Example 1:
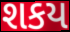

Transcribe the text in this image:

શકય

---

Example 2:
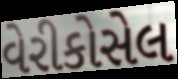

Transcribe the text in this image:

વેરીકોસેલ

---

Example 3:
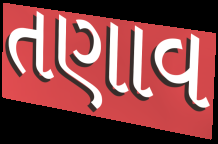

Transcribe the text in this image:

તણાવ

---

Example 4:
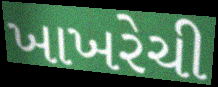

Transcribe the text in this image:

ખાખરેચી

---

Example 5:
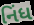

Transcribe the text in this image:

નિંધ